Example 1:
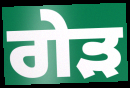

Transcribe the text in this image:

ਗੇੜ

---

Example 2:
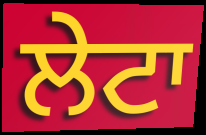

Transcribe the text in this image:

ਲੇਟਾ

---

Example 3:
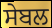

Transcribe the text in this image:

ਸੇਬਲ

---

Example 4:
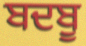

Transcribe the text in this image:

ਬਦਬੂ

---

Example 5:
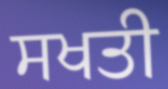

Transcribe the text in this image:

ਸਖਤੀ